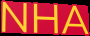
NHA